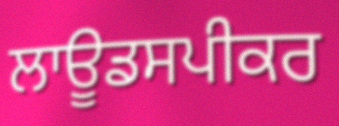
ਲਾਊਡਸਪੀਕਰ